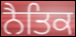
ਨੈਤਿਕ